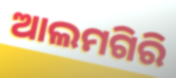
ଆଲମଗିରି